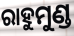
ରାହୁମୁଣ୍ଡ